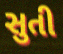
સુતી